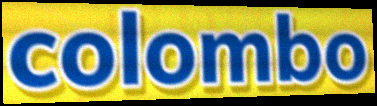
colombo